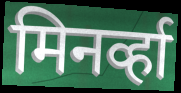
मिनर्व्हा